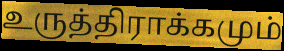
உருத்திராக்கமும்